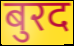
बुरद